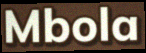
Mbola